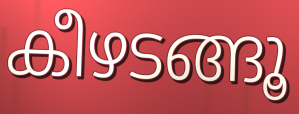
കീഴടങ്ങൂ